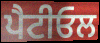
ਪੈਟੀਓਲ